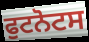
ਫੁਟਨੋਟਸ